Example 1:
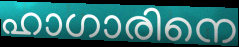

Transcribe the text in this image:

ഹാഗാരിനെ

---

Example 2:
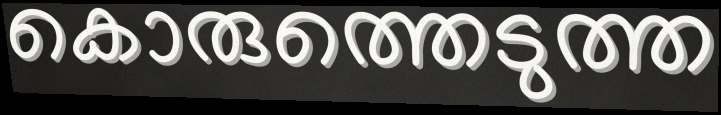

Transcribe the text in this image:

കൊരുത്തെടുത്ത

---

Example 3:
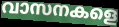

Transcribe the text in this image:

വാസനകളെ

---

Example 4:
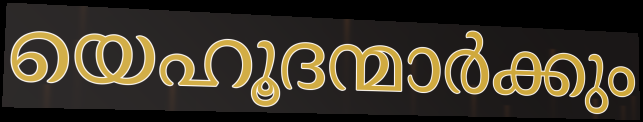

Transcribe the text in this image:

യെഹൂദന്മാർക്കും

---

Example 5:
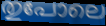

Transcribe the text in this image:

തുപോലെ